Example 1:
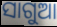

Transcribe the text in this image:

ସାଗୁଆ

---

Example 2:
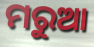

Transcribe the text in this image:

ମରୁଆ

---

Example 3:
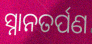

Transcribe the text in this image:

ସ୍ନାନତର୍ପଣ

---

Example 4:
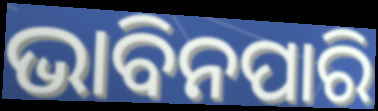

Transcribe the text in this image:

ଭାବିନପାରି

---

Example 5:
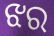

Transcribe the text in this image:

ଝର